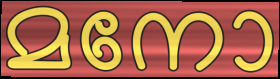
മനോ